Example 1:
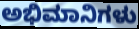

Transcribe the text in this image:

ಅಭಿಮಾನಿಗಳು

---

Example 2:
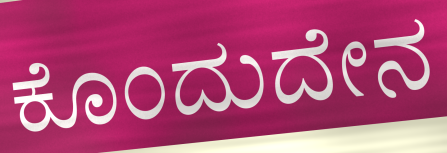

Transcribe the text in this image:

ಕೊಂದುದೇನ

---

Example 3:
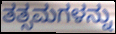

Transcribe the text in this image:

ತತ್ಸಮಗಳನ್ನು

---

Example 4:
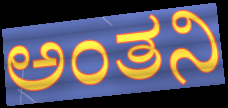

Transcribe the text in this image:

ಅಂತನಿ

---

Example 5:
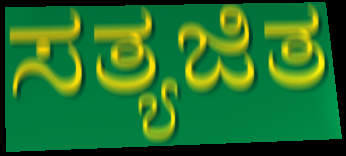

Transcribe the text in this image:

ಸತ್ಯಜಿತ